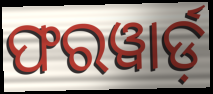
ଫରୱାର୍ଡ଼